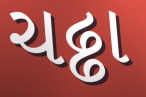
ચઢ્ઢા